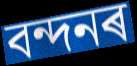
বন্দনৰ